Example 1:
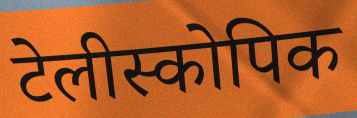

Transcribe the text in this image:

टेलीस्कोपिक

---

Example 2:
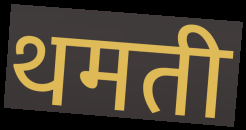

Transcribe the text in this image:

थमती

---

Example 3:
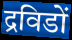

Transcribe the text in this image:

द्रविडों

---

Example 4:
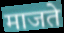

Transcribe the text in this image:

माजते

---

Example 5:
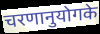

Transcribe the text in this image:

चरणानुयोगके